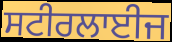
ਸਟੀਰਲਾਈਜ